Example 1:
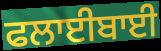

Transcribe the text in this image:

ਫਲਾਈਬਾਈ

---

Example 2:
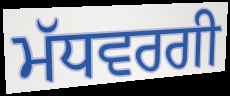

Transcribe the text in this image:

ਮੱਧਵਰਗੀ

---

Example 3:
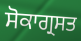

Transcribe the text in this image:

ਸੋਕਾਗ੍ਰਸਤ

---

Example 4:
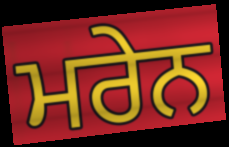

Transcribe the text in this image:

ਮਰੇਨ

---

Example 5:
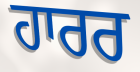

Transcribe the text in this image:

ਹਾਰਰ